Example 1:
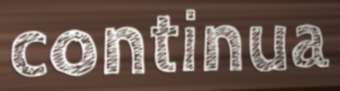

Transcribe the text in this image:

continua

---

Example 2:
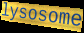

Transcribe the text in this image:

lysosome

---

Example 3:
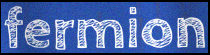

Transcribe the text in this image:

fermion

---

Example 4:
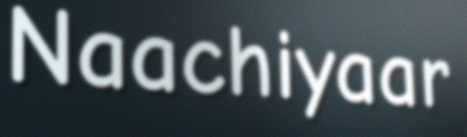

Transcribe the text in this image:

Naachiyaar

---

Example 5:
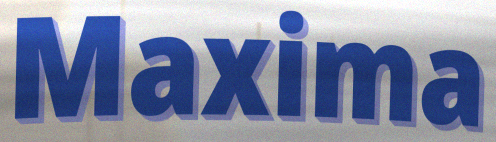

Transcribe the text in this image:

Maxima